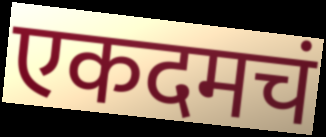
एकदमचं